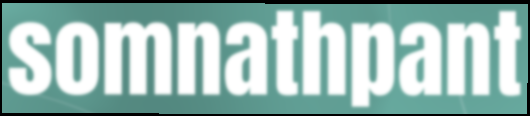
somnathpant